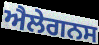
ਐਲੇਗਨਸ